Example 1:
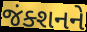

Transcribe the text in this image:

જંક્શનને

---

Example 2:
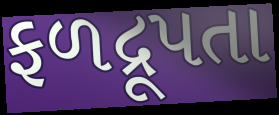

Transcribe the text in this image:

ફળદ્રૂપતા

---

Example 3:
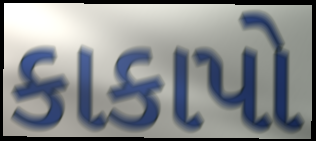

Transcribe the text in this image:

કાકાપો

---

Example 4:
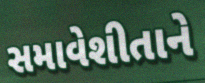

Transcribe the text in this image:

સમાવેશીતાને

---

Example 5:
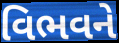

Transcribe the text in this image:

વિભવને